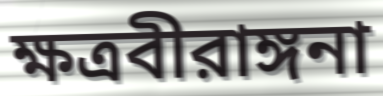
ক্ষত্রবীরাঙ্গনা